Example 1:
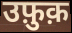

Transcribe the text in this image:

उफ़ुक़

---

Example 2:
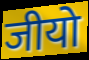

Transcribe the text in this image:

जीयो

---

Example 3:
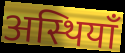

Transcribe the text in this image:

अस्थियाँ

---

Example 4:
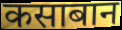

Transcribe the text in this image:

कसाबान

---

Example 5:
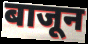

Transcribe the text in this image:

बाजून